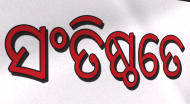
ସଂତିଷ୍ଠତେ